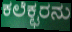
ಕಲೆಕ್ಟರನು